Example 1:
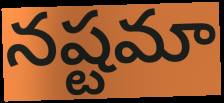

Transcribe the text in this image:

నష్టమా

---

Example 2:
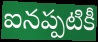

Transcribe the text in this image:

ఐనప్పటికీ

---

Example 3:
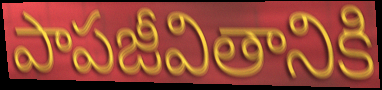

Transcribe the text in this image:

పాపజీవితానికి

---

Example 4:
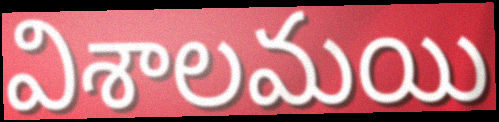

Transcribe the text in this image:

విశాలమయి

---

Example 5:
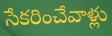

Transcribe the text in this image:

సేకరించేవాళ్లు